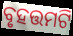
ବୃହତ୍ତମଟି